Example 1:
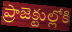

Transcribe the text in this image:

ప్రాజెక్టుల్లోకి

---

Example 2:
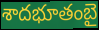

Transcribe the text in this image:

శాదభూతంబై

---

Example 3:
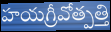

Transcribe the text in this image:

హయగ్రీవోత్పత్తి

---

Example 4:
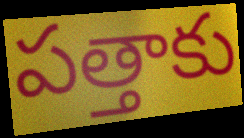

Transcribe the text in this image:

పత్తాకు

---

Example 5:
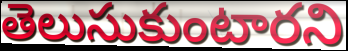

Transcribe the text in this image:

తెలుసుకుంటారని